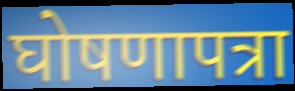
घोषणापत्रा